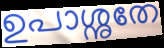
ഉപാശ്നുതേ